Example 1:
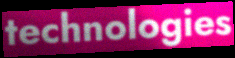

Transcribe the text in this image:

technologies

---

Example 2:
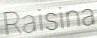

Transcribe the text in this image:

Raisina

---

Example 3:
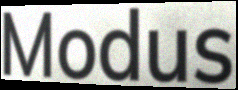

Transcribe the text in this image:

Modus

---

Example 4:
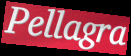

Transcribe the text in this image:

Pellagra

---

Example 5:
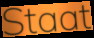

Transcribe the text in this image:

Staat